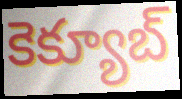
కెక్యూబ్